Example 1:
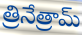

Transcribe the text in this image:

త్రినేత్రామ్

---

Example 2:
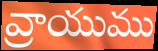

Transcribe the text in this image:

వ్రాయుము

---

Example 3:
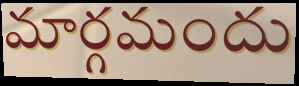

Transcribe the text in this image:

మార్గమందు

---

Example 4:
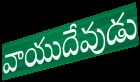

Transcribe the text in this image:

వాయుదేవుడు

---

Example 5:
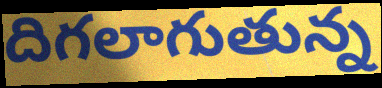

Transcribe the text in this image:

దిగలాగుతున్న